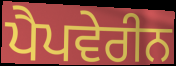
ਪੈਪਵੇਰੀਨ